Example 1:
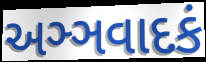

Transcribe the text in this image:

અઞ્ઞવાદકં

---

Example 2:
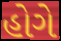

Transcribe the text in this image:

હોગે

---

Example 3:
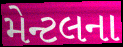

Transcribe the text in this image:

મેન્ટલના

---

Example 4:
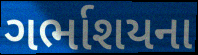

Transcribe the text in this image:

ગર્ભાશયના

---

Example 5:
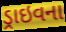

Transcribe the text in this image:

ડ્રાઇવના